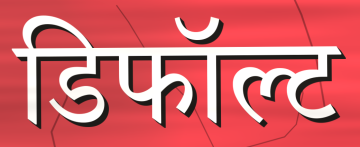
डिफॉल्ट